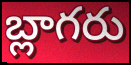
బ్లాగరు